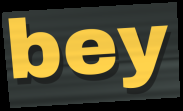
bey